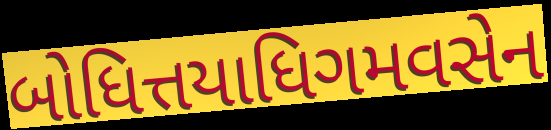
બોધિત્તયાધિગમવસેન